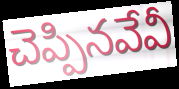
చెప్పినవేవీ